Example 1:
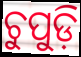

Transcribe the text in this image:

ଚୁପୁଡ଼ି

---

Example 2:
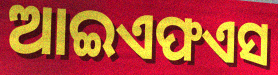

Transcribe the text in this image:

ଆଇଏଫଏସ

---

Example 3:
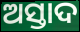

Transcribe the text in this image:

ଅସ୍ତାଦ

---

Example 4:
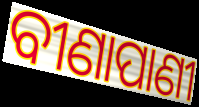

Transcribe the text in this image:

ବୀଣାପାଣୀ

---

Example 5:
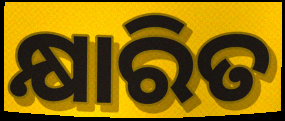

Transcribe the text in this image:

କ୍ଷାରିତ